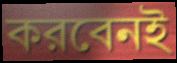
করবেনই